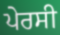
ਪੇਰਸੀ